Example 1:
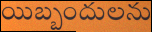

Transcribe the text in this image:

యిబ్బందులను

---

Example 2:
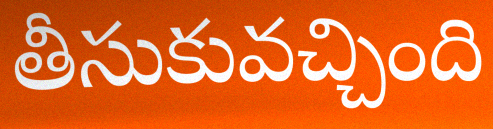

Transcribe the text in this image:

తీసుకువచ్చింది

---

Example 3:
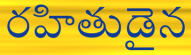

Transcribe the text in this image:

రహితుడైన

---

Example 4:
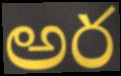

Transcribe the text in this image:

అర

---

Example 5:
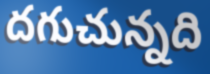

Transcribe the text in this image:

దగుచున్నది